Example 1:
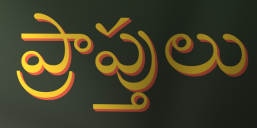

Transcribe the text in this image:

ప్రాప్తులు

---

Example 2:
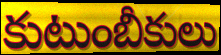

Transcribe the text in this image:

కుటుంబీకులు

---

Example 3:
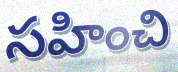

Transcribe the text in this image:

సహించి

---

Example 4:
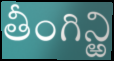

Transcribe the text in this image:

తీంగిన్ఱి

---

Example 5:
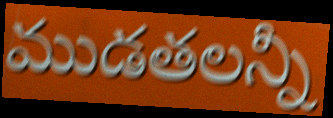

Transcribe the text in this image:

ముడతలన్నీ